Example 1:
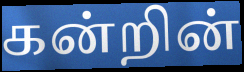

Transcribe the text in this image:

கன்றின்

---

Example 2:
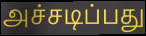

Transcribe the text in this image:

அச்சடிப்பது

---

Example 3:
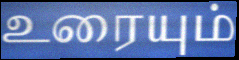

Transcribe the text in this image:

உரையும்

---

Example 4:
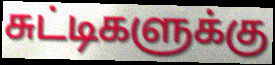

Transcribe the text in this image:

சுட்டிகளுக்கு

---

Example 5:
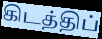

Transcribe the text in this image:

கிடத்திப்